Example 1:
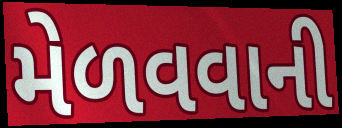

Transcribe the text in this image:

મેળવવાની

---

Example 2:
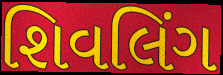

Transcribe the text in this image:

શિવલિંગ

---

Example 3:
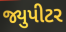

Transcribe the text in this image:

જ્યુપીટર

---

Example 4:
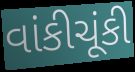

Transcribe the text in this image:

વાંકીચૂંકી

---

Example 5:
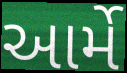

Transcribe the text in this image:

આર્મે